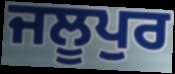
ਜਲੂਪੁਰ